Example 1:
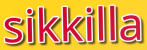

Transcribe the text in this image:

sikkilla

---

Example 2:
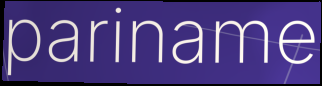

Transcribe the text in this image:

pariname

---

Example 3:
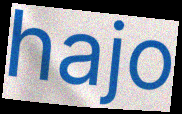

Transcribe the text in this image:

hajo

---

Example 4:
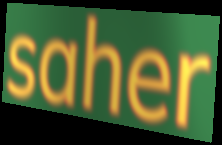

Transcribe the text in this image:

saher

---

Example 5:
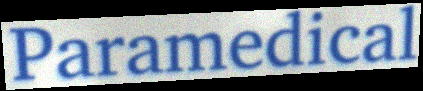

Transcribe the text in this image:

Paramedical